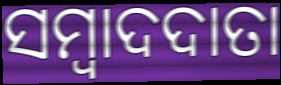
ସମ୍ବାଦଦାତା